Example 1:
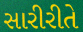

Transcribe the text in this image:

સારીરીતે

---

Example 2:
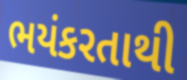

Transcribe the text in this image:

ભયંકરતાથી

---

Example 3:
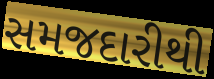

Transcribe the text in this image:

સમજદારીથી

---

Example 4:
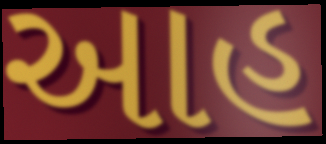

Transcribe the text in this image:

આહ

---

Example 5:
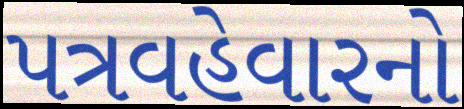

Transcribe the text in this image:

પત્રવહેવારનો